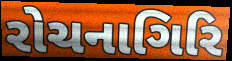
રોચનાગિરિ